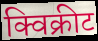
क्विक्रीट